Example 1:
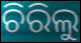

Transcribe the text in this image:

ଚିରିଲୁ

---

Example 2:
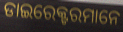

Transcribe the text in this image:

ଡାଇରେକ୍ଟରମାନେ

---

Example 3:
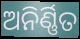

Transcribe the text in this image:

ଅନିର୍ଣ୍ଣିତ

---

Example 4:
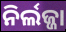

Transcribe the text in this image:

ନିର୍ଲଜ୍ଜା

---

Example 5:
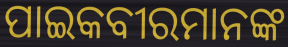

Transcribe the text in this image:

ପାଇକବୀରମାନଙ୍କ